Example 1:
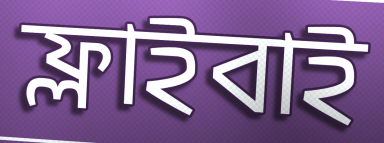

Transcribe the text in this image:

ফ্লাইবাই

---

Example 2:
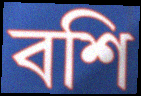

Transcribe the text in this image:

বশি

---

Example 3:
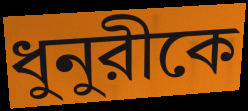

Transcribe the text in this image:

ধুনুরীকে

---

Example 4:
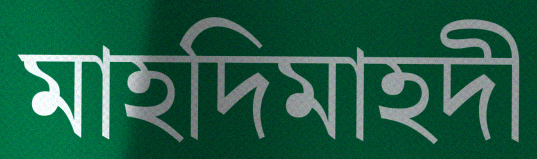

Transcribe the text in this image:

মাহদিমাহদী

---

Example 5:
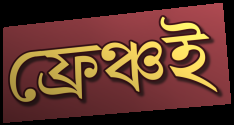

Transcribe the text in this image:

ফ্রেঞ্চই